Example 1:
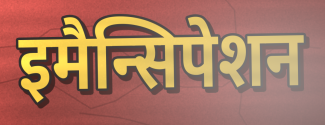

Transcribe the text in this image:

इमैन्सिपेशन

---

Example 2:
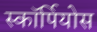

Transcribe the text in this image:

स्कॉर्पियोस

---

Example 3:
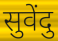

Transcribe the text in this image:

सुवेंदु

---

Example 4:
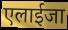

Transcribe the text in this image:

एलाईजा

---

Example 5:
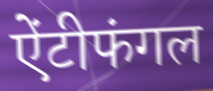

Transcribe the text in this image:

ऐंटीफंगल